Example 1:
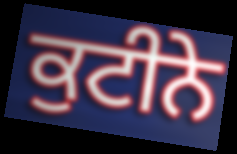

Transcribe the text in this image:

ਕੁਟੀਨੇ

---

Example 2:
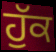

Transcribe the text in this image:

ਹੁੱਕ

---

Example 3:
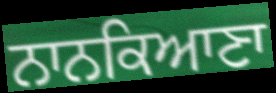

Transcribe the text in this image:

ਨਾਨਕਿਆਣਾ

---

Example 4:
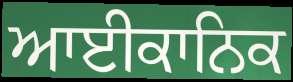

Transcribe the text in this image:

ਆਈਕਾਨਿਕ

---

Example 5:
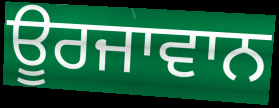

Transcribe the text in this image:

ਊਰਜਾਵਾਨ